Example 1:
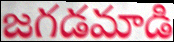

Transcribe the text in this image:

జగడమాడి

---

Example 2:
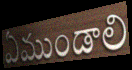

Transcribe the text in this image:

ఏముండాలి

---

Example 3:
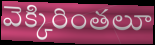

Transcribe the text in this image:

వెక్కిరింతలూ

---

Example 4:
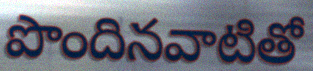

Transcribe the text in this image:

పొందినవాటితో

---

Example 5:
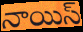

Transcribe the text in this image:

నాయిస్